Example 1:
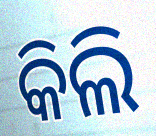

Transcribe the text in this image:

କିଲି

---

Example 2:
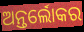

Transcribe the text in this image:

ଅନ୍ତର୍ଲୋକର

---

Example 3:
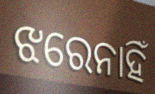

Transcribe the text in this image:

ଝରେନାହିଁ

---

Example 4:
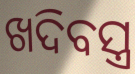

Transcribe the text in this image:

ଖଦିବସ୍ତ୍ର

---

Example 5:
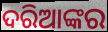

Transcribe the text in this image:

ଦରିଆଙ୍କର